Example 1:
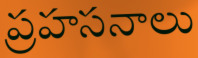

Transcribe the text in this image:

ప్రహసనాలు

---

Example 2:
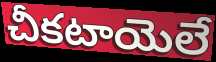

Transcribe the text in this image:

చీకటాయెలే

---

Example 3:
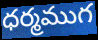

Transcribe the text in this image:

ధర్మముగ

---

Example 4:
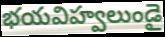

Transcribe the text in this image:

భయవిహ్వలుండై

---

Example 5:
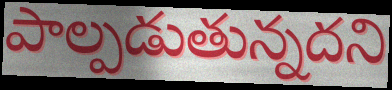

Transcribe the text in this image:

పాల్పడుతున్నదని